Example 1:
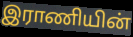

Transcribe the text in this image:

இராணியின்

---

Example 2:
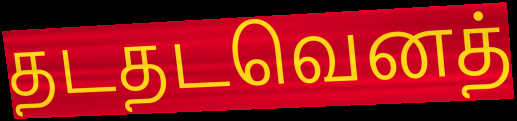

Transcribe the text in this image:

தடதடவெனத்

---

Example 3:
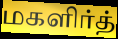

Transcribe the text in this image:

மகளிர்த்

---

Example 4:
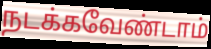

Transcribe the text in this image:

நடக்கவேண்டாம்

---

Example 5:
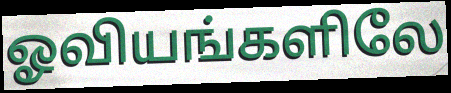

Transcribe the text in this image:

ஓவியங்களிலே